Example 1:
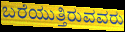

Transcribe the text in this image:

ಬರೆಯುತ್ತಿರುವವರು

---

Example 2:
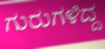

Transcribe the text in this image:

ಗುರುಗಳಿದ್ದ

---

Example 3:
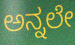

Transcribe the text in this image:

ಅನ್ನಲೇ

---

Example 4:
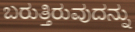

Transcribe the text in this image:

ಬರುತ್ತಿರುವುದನ್ನು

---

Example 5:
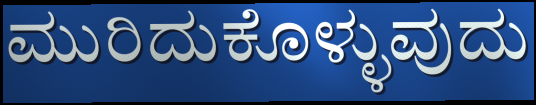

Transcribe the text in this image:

ಮುರಿದುಕೊಳ್ಳುವುದು